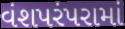
વંશપરંપરામાં